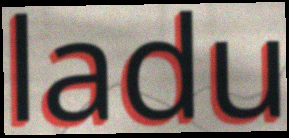
ladu